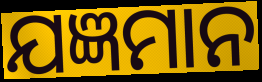
ଯଜ୍ଞମାନ